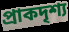
প্রাকদৃশ্য